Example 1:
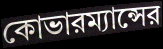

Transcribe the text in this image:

কোভারম্যান্সের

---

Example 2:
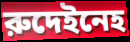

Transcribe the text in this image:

রুদেইনেহ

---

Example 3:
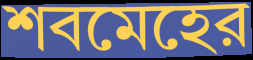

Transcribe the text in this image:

শবমেহের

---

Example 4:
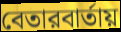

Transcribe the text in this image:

বেতারবার্তায়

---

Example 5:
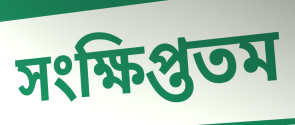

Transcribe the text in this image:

সংক্ষিপ্ততম